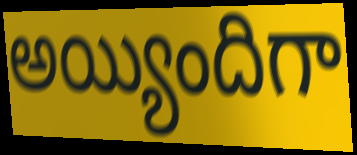
అయ్యిందిగా